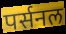
पर्सनल